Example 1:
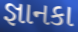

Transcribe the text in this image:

જ્ઞાનકા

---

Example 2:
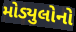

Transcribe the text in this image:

મોડ્યુલોનો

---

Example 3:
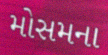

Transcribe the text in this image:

મોસમના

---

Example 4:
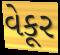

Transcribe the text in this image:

વેકૂર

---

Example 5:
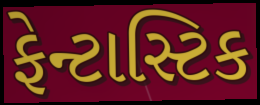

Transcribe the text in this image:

ફેન્ટાસ્ટિક